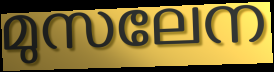
മുസലേന